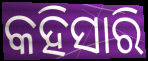
କହିସାରି